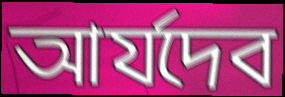
আর্যদেব